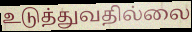
உடுத்துவதில்லை